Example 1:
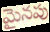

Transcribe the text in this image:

మైనపు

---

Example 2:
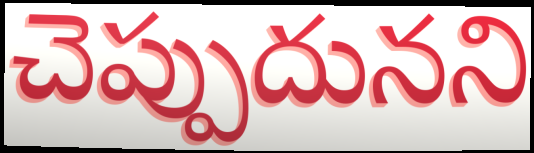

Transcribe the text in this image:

చెప్పుదునని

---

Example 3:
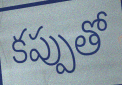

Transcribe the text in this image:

కప్పుతో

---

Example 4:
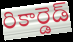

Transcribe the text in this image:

రికార్డెడ్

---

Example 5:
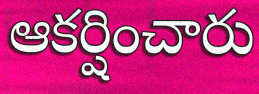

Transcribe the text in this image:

ఆకర్షించారు